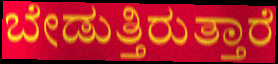
ಬೇಡುತ್ತಿರುತ್ತಾರೆ